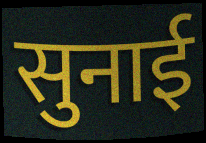
सुनाई